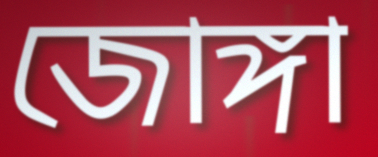
জোঙ্গা